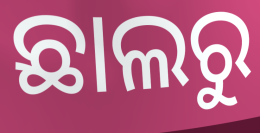
ଛାଲରୁ